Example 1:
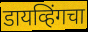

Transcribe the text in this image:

डायव्हिंगचा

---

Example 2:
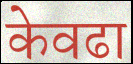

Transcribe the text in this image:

केवढा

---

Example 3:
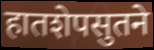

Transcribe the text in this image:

हातशेपसुतने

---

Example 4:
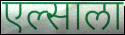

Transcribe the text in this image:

एल्साला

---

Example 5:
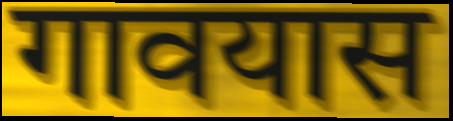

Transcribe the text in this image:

गावयास